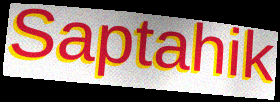
Saptahik